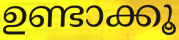
ഉണ്ടാക്കൂ